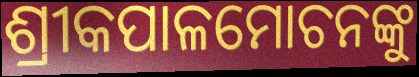
ଶ୍ରୀକପାଳମୋଚନଙ୍କୁ